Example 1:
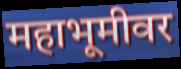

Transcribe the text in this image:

महाभूमीवर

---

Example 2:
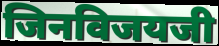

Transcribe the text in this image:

जिनविजयजी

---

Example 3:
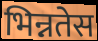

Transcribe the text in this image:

भिन्नतेस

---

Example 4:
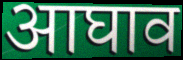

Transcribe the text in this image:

आघाव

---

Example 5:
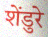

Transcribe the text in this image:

शेंडुरे